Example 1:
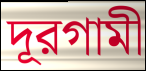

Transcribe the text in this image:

দূরগামী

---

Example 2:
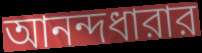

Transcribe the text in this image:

আনন্দধারার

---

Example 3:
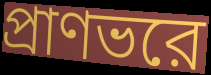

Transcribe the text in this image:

প্রাণভরে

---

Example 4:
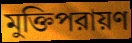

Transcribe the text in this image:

মুক্তিপরায়ণ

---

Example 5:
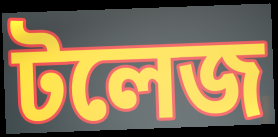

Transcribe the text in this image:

টলেজ